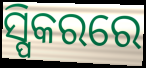
ସ୍ପିକରରେ